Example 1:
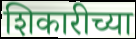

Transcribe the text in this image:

शिकारीच्या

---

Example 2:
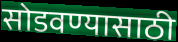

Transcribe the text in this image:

सोडवण्यासाठी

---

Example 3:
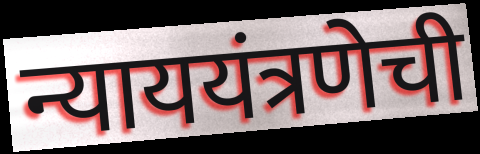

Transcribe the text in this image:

न्याययंत्रणेची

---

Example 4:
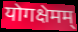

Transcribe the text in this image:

योगक्षेमम्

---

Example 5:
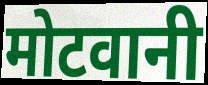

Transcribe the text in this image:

मोटवानी